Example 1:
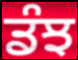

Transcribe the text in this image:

ਡੰਝ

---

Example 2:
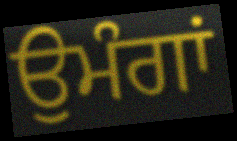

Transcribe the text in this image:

ਉਮੰਗਾਂ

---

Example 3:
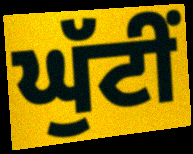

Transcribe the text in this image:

ਘੁੱਟੀਂ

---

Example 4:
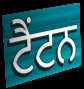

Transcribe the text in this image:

ਟੈਂਟਨ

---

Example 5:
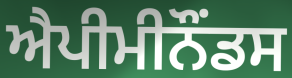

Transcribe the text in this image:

ਐਪੀਮੀਨੌਂਡਸ